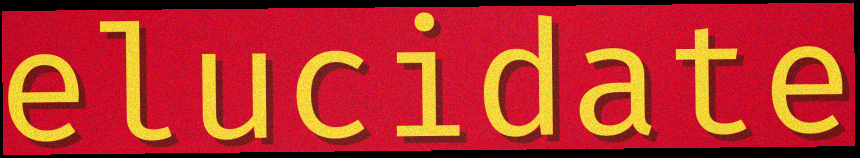
elucidate